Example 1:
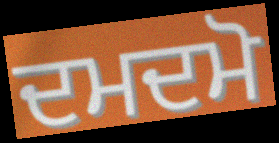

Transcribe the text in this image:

ਦਮਦਮੋ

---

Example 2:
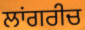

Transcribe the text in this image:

ਲਾਂਗਰੀਚ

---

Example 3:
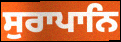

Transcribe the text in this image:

ਸੁਰਾਪਾਨਿ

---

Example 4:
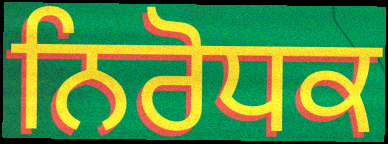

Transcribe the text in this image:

ਨਿਰੋਧਕ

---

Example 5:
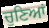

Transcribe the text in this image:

ਚੁਣਿਆਂ